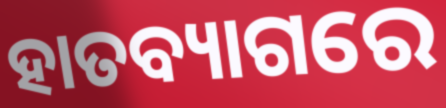
ହାତବ୍ୟାଗରେ